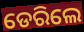
ଡେରିଲେ